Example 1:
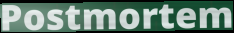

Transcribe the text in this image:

Postmortem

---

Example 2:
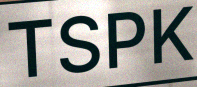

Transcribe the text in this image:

TSPK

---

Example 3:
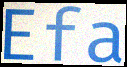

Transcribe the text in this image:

Efa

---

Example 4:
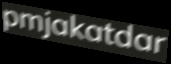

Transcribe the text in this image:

pmjakatdar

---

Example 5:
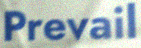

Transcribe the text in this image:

Prevail